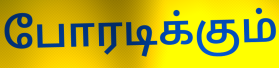
போரடிக்கும்